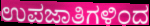
ಉಪಜಾತಿಗಳಿಂದ